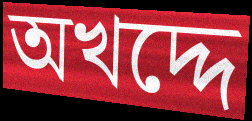
অখদ্দে